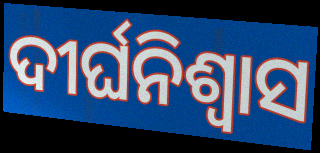
ଦୀର୍ଘନିଶ୍ବାସ